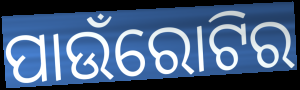
ପାଉଁରୋଟିର